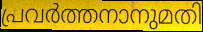
പ്രവർത്തനാനുമതി